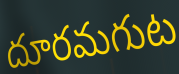
దూరమగుట